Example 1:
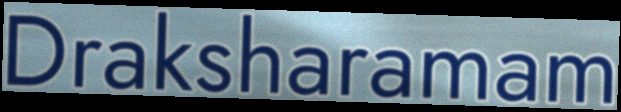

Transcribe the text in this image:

Draksharamam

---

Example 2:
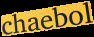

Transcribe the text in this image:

chaebol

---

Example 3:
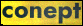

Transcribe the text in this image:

conept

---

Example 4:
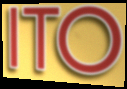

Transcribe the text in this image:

ITO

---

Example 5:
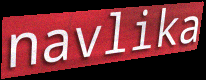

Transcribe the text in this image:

navlika